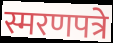
स्मरणपत्रे